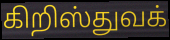
கிறிஸ்துவக்